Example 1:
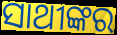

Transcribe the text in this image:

ସାଥୀଙ୍କର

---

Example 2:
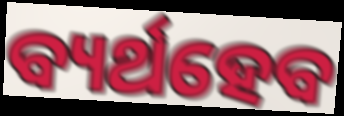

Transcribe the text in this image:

ବ୍ୟର୍ଥହେବ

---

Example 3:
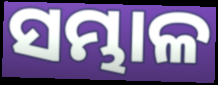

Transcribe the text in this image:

ସମ୍ଭାଳ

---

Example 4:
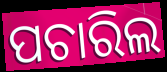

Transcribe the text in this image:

ପଚାରିଲ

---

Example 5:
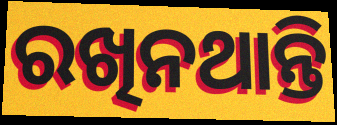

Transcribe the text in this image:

ରଖିନଥାନ୍ତି